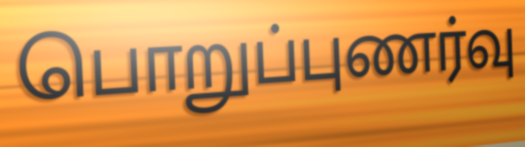
பொறுப்புணர்வு